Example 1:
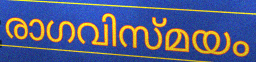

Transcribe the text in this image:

രാഗവിസ്മയം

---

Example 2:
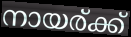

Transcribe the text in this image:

നായര്ക്ക്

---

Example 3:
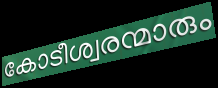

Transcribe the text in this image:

കോടീശ്വരന്മാരും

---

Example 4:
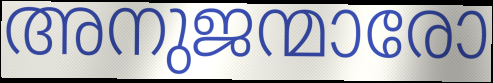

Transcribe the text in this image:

അനുജന്മാരോ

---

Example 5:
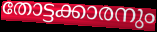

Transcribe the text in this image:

തോട്ടക്കാരനും